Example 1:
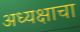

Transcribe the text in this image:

अध्यक्षाचा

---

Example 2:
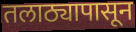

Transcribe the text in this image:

तलाठ्यापासून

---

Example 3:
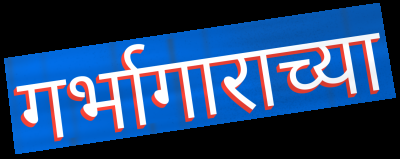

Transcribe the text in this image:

गर्भागाराच्या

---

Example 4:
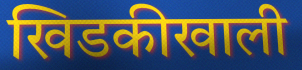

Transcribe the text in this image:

खिडकीखाली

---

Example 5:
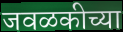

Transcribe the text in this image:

जवळकीच्या